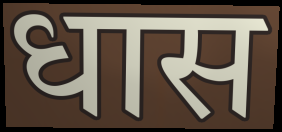
धास